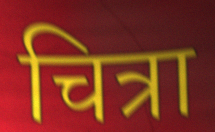
चित्रा